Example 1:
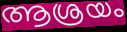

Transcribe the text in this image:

ആശ്രയം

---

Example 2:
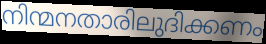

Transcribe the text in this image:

നിന്മനതാരിലുദിക്കണം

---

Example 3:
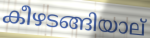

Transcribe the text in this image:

കീഴടങ്ങിയാല്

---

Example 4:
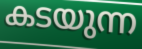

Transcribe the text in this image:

കടയുന്ന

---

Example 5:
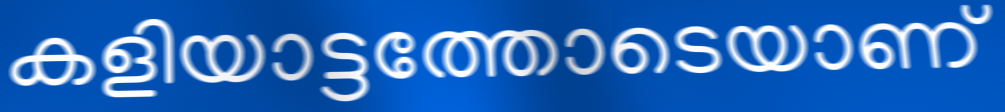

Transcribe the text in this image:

കളിയാട്ടത്തോടെയാണ്